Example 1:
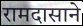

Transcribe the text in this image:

रामदासाने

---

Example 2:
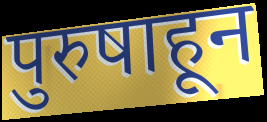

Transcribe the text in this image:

पुरुषाहून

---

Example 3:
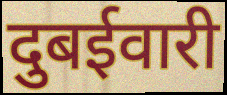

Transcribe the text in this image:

दुबईवारी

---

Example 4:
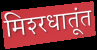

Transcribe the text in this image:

मिश्रधातूंत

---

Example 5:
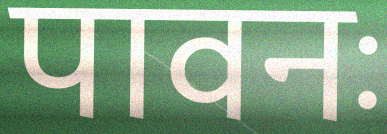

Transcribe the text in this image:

पावनः